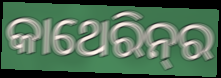
କାଥେରିନ୍‌ର